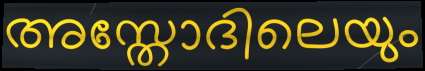
അസ്തോദിലെയും